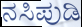
ನಸಿಪುಡಿ